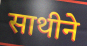
साथीने